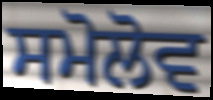
ਸਮੋਲੋਵ